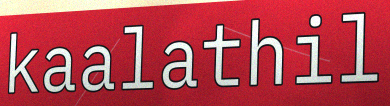
kaalathil